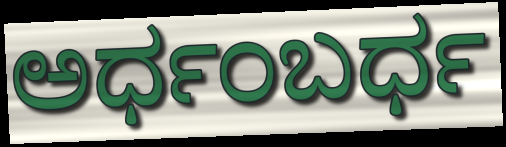
ಅರ್ಧಂಬರ್ಧ